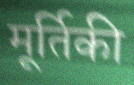
मूर्तिकी